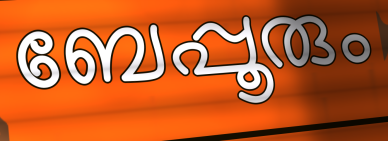
ബേപ്പൂരും